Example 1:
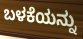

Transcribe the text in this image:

ಬಳಕೆಯನ್ನು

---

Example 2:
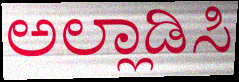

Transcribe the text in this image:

ಅಲ್ಲಾಡಿಸಿ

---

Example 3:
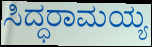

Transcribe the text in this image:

ಸಿದ್ಧರಾಮಯ್ಯ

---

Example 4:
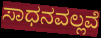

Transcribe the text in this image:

ಸಾಧನವಲ್ಲವೆ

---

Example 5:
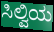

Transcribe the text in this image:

ಸಿಲ್ವಿಯ